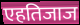
एहतिजाज